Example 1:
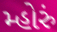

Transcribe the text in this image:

મ્હોરું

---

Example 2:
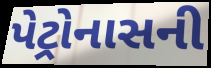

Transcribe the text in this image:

પેટ્રોનાસની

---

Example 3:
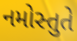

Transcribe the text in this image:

નમોસ્તુતે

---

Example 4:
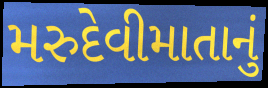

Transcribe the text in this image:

મરુદેવીમાતાનું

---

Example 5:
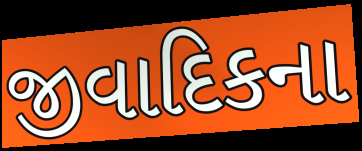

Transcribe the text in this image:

જીવાદિકના